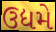
ઉદ્યમે